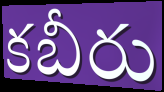
కబీరు